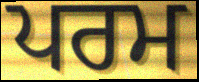
ਪਰਮ